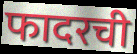
फादरची